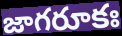
జాగరూకః